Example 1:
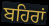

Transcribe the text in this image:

ਬਹਿਰਾਂ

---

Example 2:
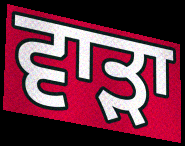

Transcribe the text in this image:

ਵਾੜਾ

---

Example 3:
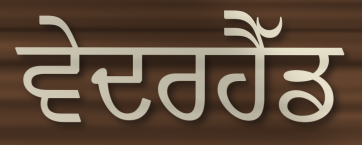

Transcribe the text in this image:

ਵੇਦਰਹੈੱਡ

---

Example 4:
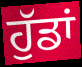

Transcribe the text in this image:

ਹੁੱਡਾਂ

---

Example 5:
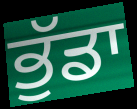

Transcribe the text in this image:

ਭੁੱਡਾ